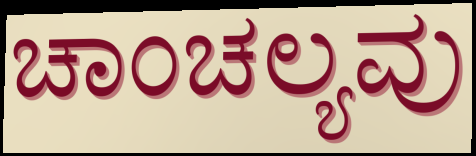
ಚಾಂಚಲ್ಯವು